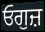
ਓਗੁਜ਼